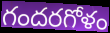
గందరగోళం